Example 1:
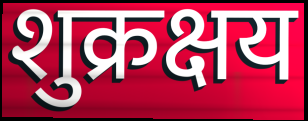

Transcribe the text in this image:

शुक्रक्षय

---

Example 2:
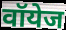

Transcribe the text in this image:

वॉयेज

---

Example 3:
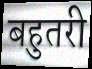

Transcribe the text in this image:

बहुतरी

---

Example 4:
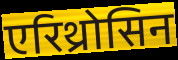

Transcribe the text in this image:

एरिथ्रोसिन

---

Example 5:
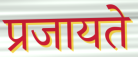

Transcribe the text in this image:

प्रजायते